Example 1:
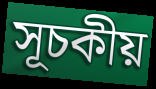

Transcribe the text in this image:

সূচকীয়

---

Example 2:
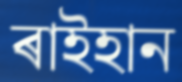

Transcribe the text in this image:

ৰাইহান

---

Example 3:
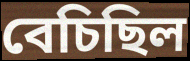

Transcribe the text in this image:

বেচিছিল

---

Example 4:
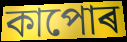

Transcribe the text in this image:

কাপোৰ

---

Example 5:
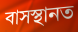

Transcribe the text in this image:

বাসস্থানত